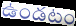
ఉండటం